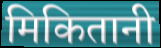
मिकितानी